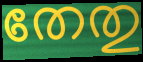
തേതു